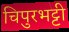
चिपुरभट्टी